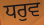
ਧਰੁਵ